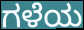
ಗಳೆಯ